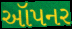
ઑપનર